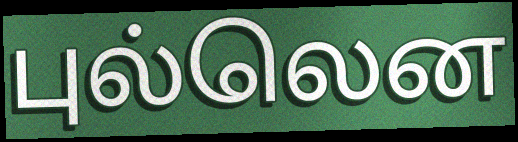
புல்லென